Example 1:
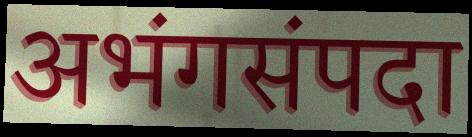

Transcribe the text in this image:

अभंगसंपदा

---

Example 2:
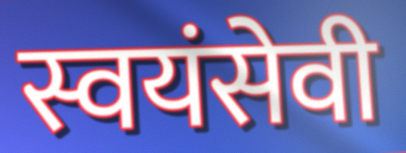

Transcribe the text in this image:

स्वयंसेवी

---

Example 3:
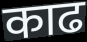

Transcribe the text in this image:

काढ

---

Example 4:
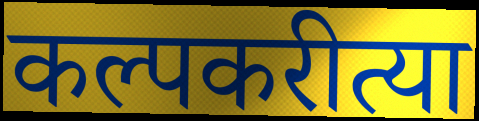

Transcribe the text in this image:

कल्पकरीत्या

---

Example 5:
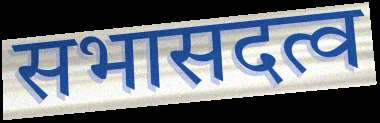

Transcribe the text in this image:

सभासदत्व